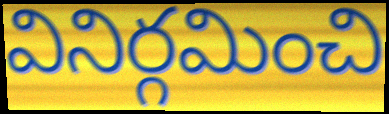
వినిర్గమించి